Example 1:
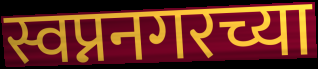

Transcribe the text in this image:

स्वप्ननगरच्या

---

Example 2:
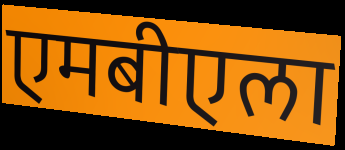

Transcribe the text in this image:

एमबीएला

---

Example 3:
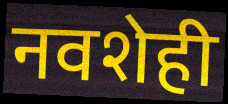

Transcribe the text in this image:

नवशेही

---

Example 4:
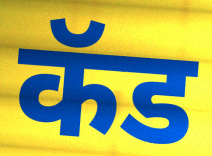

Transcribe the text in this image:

कॅड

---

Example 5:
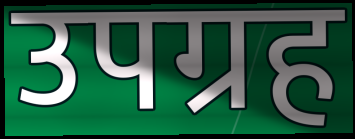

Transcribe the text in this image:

उपग्रह